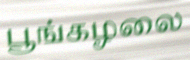
பூங்கழலை